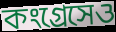
কংগ্রেসেও